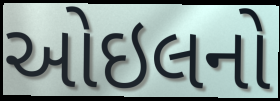
ઓઇલનો